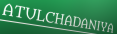
ATULCHADANIYA